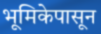
भूमिकेपासून